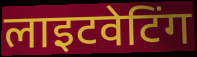
लाइटवेटिंग